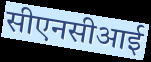
सीएनसीआई